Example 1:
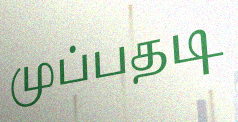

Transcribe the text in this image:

முப்பதடி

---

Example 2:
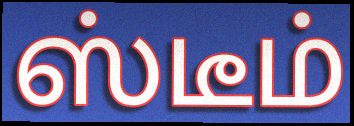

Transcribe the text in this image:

ஸ்டீம்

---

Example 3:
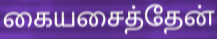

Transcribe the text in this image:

கையசைத்தேன்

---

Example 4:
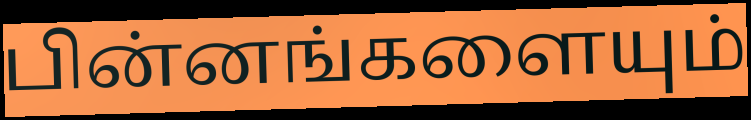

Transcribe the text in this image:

பின்னங்களையும்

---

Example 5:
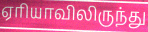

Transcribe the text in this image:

ஏரியாவிலிருந்து